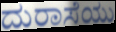
ದುರಾಸೆಯು